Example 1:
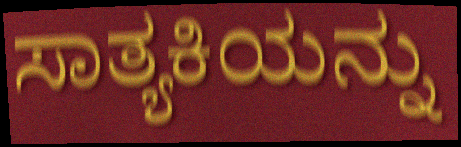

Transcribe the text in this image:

ಸಾತ್ಯಕಿಯನ್ನು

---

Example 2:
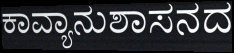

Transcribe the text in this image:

ಕಾವ್ಯಾನುಶಾಸನದ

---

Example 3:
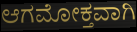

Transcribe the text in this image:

ಆಗಮೋಕ್ತವಾಗಿ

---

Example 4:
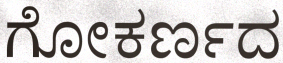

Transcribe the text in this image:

ಗೋಕರ್ಣದ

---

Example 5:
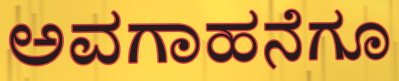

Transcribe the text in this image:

ಅವಗಾಹನೆಗೂ